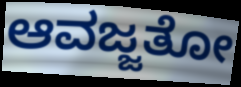
ಆವಜ್ಜತೋ